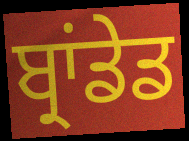
ਬ੍ਰਾਂਡੇਡ